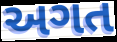
અગત